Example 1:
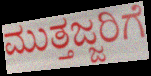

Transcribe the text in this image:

ಮುತ್ತಜ್ಜರಿಗೆ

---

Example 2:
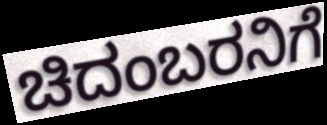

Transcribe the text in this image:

ಚಿದಂಬರನಿಗೆ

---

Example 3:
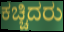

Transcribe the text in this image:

ಕಚ್ಚಿದರು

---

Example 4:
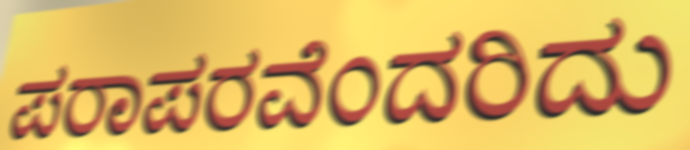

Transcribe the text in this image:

ಪರಾಪರವೆಂದರಿದು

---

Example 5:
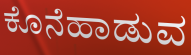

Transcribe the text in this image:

ಕೊನೆಹಾಡುವ